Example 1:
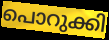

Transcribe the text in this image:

പൊറുക്കി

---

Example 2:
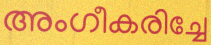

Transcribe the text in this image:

അംഗീകരിച്ചേ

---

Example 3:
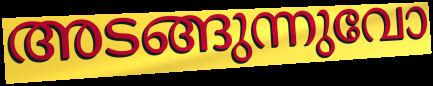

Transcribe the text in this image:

അടങ്ങുന്നുവോ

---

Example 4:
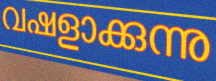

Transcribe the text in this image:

വഷളാക്കുന്നു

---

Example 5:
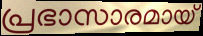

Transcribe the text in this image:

പ്രഭാസാരമായ്